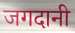
जगदानी